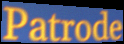
Patrode